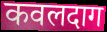
कवलदाग